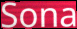
Sona